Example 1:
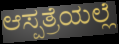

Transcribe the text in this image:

ಆಸ್ಪತ್ರೆಯಲ್ಲೆ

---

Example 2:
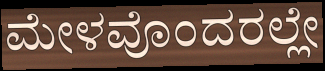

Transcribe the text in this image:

ಮೇಳವೊಂದರಲ್ಲೇ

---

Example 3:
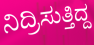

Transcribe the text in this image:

ನಿದ್ರಿಸುತ್ತಿದ್ದ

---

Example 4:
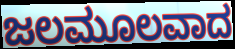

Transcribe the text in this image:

ಜಲಮೂಲವಾದ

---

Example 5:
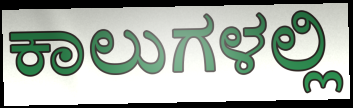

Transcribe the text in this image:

ಕಾಲುಗಳಲ್ಲಿ